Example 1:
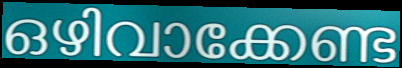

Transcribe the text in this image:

ഒഴിവാക്കേണ്ട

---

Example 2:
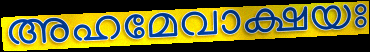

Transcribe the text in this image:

അഹമേവാക്ഷയഃ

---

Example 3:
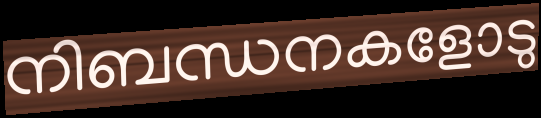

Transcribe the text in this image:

നിബന്ധനകളോടു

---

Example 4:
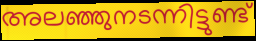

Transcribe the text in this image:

അലഞ്ഞുനടന്നിട്ടുണ്ട്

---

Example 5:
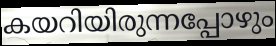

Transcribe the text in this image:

കയറിയിരുന്നപ്പോഴും